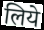
लिये